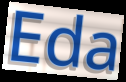
Eda